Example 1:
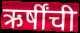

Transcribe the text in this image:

ऋर्षींची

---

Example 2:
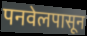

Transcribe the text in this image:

पनवेलपासून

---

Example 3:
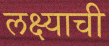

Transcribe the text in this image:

लक्ष्याची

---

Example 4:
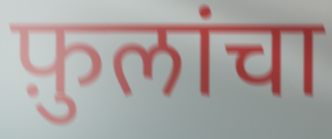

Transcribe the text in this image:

फ़ुलांचा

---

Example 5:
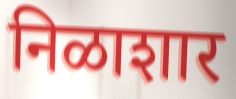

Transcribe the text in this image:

निळाशार